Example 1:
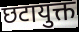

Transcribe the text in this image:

छटायुक्त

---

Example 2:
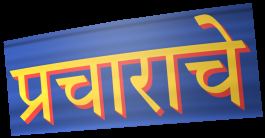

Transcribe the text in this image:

प्रचाराचे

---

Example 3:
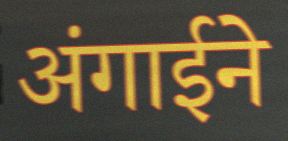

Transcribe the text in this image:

अंगाईने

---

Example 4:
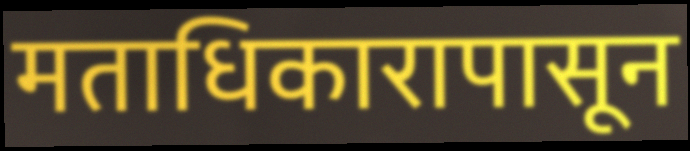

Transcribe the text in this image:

मताधिकारापासून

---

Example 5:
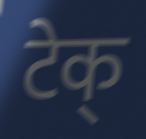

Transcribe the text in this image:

टेक्